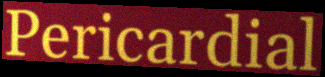
Pericardial